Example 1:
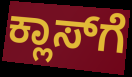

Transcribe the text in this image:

ಕ್ಲಾಸ್‌ಗೆ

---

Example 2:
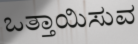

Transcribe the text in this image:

ಒತ್ತಾಯಿಸುವ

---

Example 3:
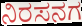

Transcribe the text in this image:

ನಿರಸನಗ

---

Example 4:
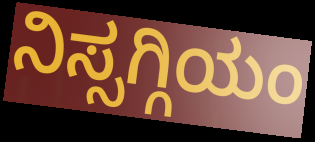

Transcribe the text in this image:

ನಿಸ್ಸಗ್ಗಿಯಂ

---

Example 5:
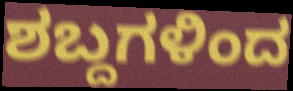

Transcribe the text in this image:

ಶಬ್ದಗಳಿಂದ